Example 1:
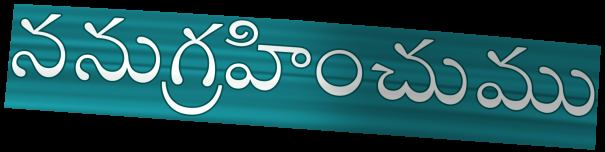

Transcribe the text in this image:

ననుగ్రహించుము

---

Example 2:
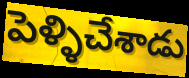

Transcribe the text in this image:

పెళ్ళిచేశాడు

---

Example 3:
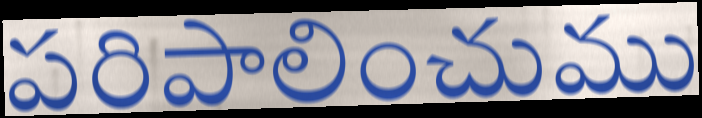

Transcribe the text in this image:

పరిపాలించుము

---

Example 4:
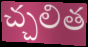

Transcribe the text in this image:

చ్చలిత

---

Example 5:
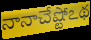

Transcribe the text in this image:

నానాచేష్టోఽథ